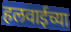
हलवाईच्या